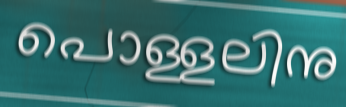
പൊള്ളലിനു